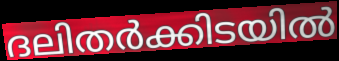
ദലിതർക്കിടയിൽ